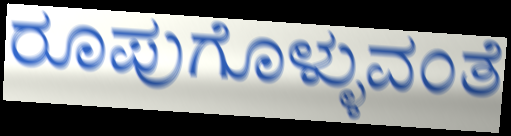
ರೂಪುಗೊಳ್ಳುವಂತೆ